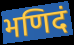
भणिदं